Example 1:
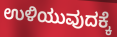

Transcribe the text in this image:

ಉಳಿಯುವುದಕ್ಕೆ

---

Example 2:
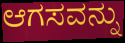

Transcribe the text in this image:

ಆಗಸವನ್ನು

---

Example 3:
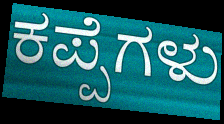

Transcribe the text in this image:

ಕಪ್ಪೆಗಳು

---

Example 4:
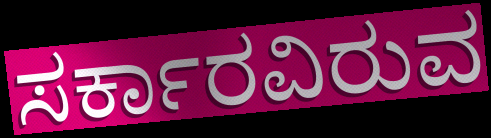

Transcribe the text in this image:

ಸರ್ಕಾರವಿರುವ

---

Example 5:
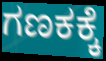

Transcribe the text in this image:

ಗಣಕಕ್ಕೆ